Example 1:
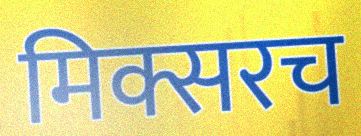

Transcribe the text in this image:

मिक्सरच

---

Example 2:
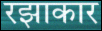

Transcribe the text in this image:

रझाकार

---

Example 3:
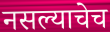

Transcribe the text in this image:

नसल्याचेच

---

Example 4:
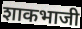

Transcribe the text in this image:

शाकभाजी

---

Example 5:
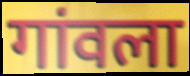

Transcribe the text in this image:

गांवला